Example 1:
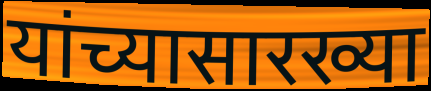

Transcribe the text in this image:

यांच्यासारख्या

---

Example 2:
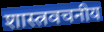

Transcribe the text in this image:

शास्त्रवचनीय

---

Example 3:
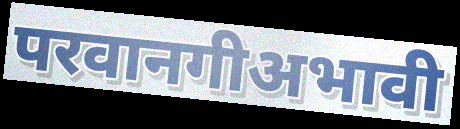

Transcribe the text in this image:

परवानगीअभावी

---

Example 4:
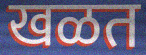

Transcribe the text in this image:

खळत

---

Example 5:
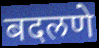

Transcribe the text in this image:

बदलणे